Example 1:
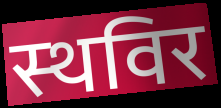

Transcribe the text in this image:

स्थविर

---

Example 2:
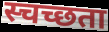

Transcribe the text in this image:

स्चच्छता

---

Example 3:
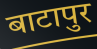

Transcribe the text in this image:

बाटापुर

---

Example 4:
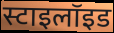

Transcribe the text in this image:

स्टाइलॉइड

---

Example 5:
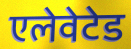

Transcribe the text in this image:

एलेवेटेड